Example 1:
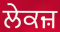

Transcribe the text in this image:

ਲੇਕਜ਼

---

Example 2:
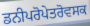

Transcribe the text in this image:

ਡਨੀਪਰੋਪੇਤਰੋਵਸਕ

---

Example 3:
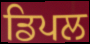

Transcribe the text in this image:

ਡਿਪਲ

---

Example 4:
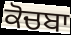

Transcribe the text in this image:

ਕੋਚਬਾ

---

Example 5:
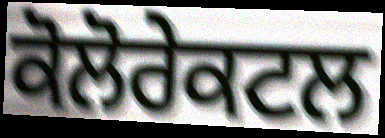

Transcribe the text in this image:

ਕੋਲੋਰੇਕਟਲ